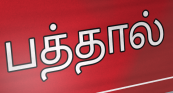
பத்தால்